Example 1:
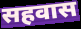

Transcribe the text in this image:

सहवास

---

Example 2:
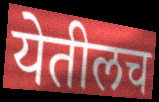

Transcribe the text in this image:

येतीलच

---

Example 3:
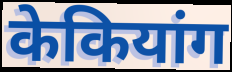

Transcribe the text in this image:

केकियांग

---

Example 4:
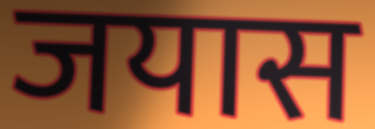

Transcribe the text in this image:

जयास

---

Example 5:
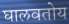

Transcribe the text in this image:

घालवतोय